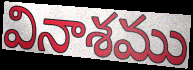
వినాశము